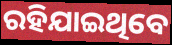
ରହିଯାଇଥିବେ